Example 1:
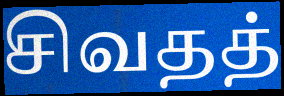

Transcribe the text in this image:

சிவதத்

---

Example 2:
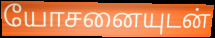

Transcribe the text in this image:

யோசனையுடன்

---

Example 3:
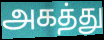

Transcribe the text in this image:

அகத்து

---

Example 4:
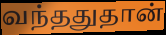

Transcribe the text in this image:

வந்ததுதான்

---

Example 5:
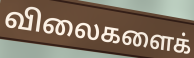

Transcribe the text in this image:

விலைகளைக்